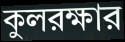
কুলরক্ষার